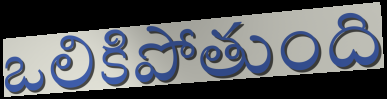
ఒలికిపోతుంది